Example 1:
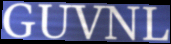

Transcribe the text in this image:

GUVNL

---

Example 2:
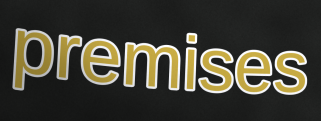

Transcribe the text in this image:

premises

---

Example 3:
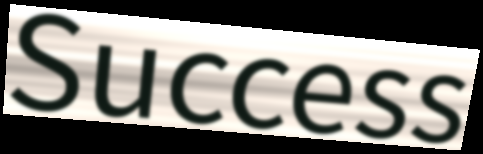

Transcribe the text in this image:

Success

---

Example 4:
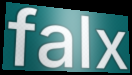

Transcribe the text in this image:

falx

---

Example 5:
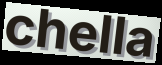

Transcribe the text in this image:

chella